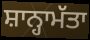
ਸ਼ਾਨ੍ਹਾਮੱਤਾ